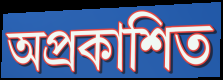
অপ্ৰকাশিত